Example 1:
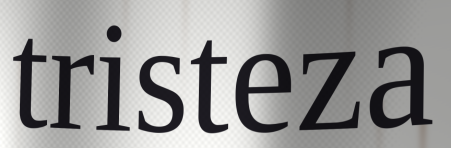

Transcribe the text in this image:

tristeza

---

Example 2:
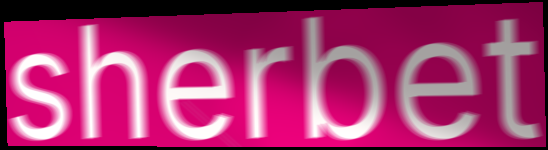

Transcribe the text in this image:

sherbet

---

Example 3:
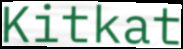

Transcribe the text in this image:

Kitkat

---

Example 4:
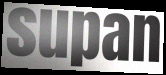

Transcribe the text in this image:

supan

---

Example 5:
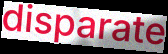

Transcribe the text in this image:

disparate